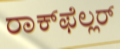
ರಾಕ್‌ಫೆಲ್ಲರ್